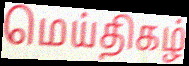
மெய்திகழ்